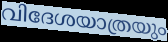
വിദേശയാത്രയും